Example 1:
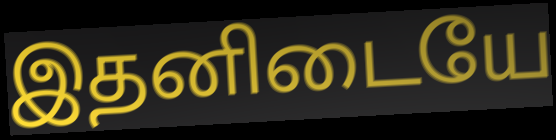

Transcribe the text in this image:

இதனிடையே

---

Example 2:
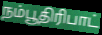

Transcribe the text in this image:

நம்பூதிரிபாட்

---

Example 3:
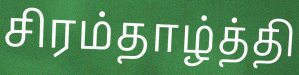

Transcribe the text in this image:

சிரம்தாழ்த்தி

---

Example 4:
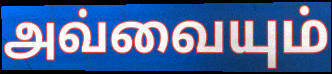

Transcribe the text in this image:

அவ்வையும்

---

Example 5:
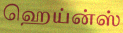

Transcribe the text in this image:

ஹெய்ன்ஸ்